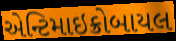
એન્ટિમાઇક્રોબાયલ